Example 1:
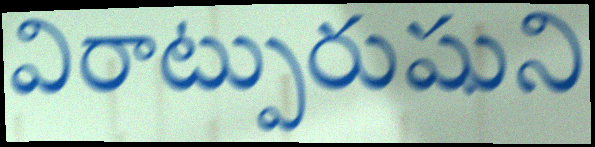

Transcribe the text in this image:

విరాట్పురుషుని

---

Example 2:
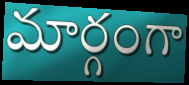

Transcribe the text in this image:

మార్గంగా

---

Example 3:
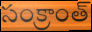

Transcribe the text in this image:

సంక్రాంత్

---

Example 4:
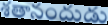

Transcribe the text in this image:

శతానందుడు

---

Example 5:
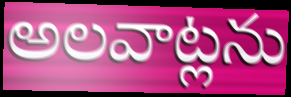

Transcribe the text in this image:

అలవాట్లను